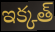
ఇక్కత్